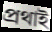
প্রথাই